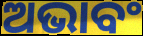
ଅଭାବଂ